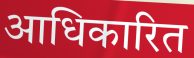
आधिकारित